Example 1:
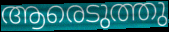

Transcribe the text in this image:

ആരെടുത്തു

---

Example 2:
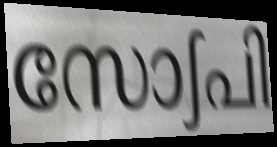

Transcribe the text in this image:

സോഽപി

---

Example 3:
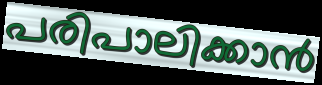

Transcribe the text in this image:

പരിപാലിക്കാൻ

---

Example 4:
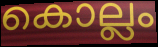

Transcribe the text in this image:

കൊല്ലം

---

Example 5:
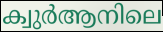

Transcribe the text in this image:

ക്വുർആനിലെ